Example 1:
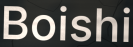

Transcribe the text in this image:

Boishi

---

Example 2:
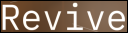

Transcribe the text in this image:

Revive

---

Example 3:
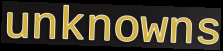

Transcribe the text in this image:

unknowns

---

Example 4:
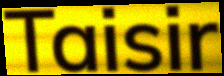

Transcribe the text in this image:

Taisir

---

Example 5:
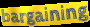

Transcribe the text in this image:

bargaining